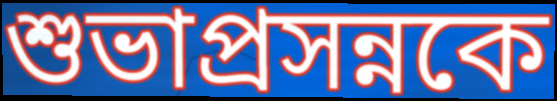
শুভাপ্রসন্নকে